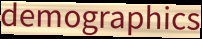
demographics